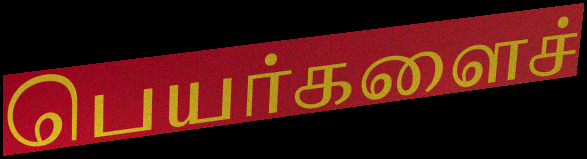
பெயர்களைச்